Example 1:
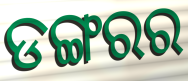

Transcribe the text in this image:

ଡଙ୍ଗରର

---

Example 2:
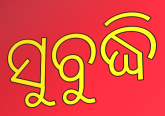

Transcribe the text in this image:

ସୁବୁଦ୍ଧି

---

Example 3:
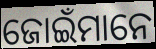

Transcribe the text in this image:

ଜୋଇଁମାନେ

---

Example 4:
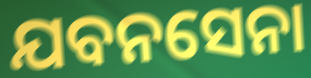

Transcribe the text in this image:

ଯବନସେନା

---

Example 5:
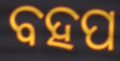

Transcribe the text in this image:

ବହପ